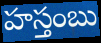
హస్తంబు